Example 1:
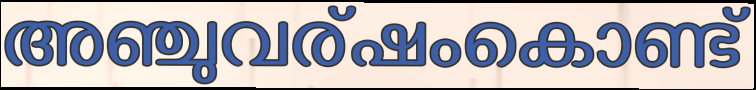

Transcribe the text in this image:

അഞ്ചുവര്ഷംകൊണ്ട്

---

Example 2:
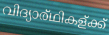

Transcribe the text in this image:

വിദ്യാര്ഥികള്ക്ക്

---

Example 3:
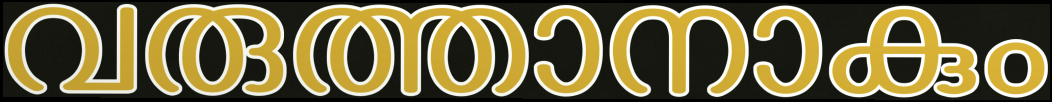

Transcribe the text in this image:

വരുത്താനാകും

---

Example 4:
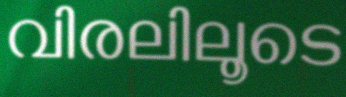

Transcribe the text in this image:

വിരലിലൂടെ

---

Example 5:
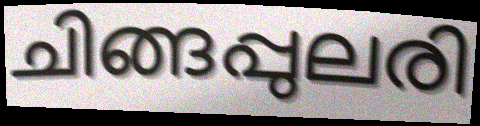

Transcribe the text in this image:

ചിങ്ങപ്പുലരി